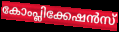
കോംപ്ലിക്കേഷൻസ്